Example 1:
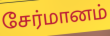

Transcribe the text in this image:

சேர்மானம்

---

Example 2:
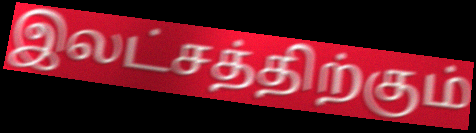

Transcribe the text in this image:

இலட்சத்திற்கும்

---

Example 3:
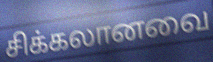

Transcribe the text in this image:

சிக்கலானவை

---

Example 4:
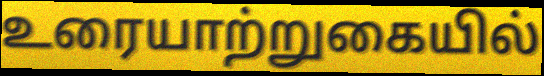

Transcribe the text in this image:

உரையாற்றுகையில்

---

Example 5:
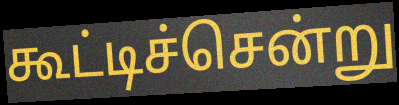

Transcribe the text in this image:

கூட்டிச்சென்று